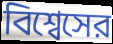
বিশ্বেসের